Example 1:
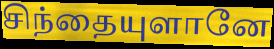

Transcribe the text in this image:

சிந்தையுளானே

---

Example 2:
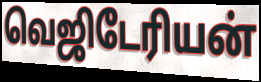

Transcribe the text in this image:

வெஜிடேரியன்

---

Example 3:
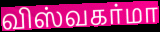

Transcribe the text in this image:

விஸ்வகர்மா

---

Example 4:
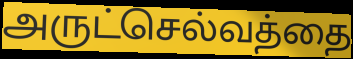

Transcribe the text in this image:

அருட்செல்வத்தை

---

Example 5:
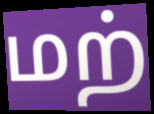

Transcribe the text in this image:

மற்